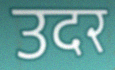
उदर